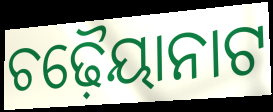
ଚଢ଼ୈୟାନାଟ